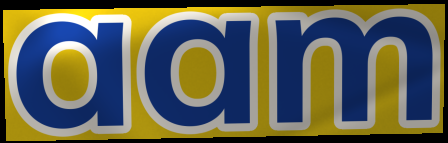
aam